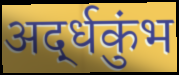
अर्द्धकुंभ